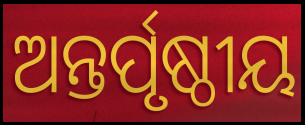
ଅନ୍ତର୍ପୃଷ୍ଠୀୟ